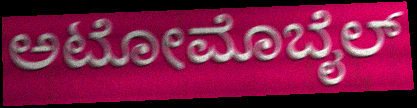
ಅಟೋಮೊಬೈಲ್